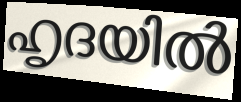
ഹൃദയിൽ